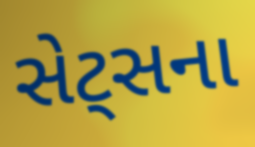
સેટ્સના